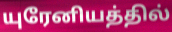
யுரேனியத்தில்